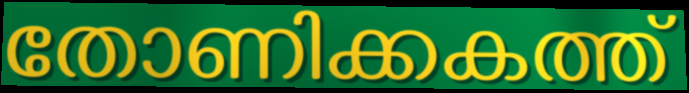
തോണിക്കകത്ത്